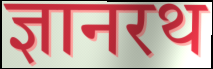
ज्ञानरथ